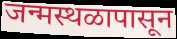
जन्मस्थळापासून